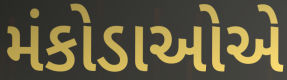
મંકોડાઓએ